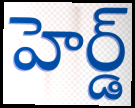
హెర్డ్